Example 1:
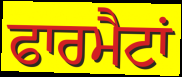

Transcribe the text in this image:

ਫਾਰਮੈਟਾਂ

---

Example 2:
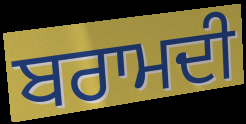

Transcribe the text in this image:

ਬਰਾਮਦੀ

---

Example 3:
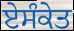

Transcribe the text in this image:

ਏਸੰਕੇਤ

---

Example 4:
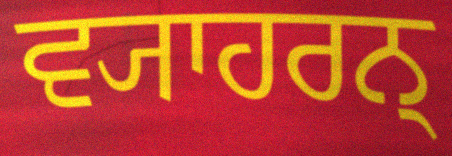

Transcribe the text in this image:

ਵ੍ਯਾਹਰਨ੍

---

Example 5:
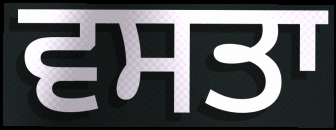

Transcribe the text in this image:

ਵਸਤਾ